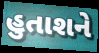
હુતાશને